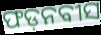
ଫଡ଼ନବୀସ